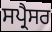
ਸਪ੍ਰੈਸਰ